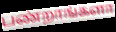
பண்றாங்களா